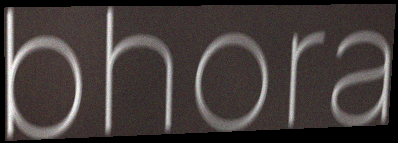
bhora